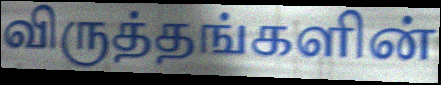
விருத்தங்களின்